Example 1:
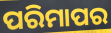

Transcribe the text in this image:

ପରିମାପର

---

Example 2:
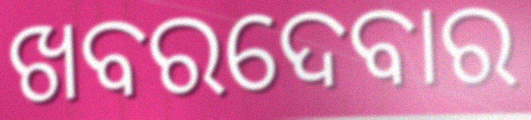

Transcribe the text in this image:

ଖବରଦେବାର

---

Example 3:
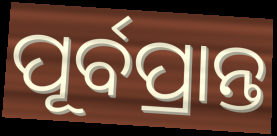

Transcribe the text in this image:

ପୂର୍ବପ୍ରାନ୍ତ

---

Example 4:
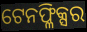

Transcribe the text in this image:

ଟେନଫ୍ଳିକ୍ସର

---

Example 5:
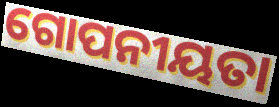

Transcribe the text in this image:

ଗୋପନୀୟତା